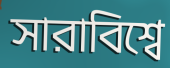
সারাবিশ্বে